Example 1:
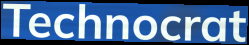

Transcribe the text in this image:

Technocrat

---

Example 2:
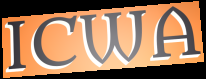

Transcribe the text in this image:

ICWA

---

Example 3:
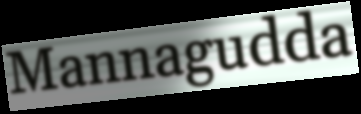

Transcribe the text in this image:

Mannagudda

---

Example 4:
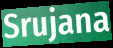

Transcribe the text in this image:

Srujana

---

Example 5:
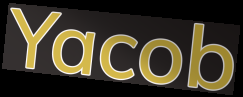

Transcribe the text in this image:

Yacob